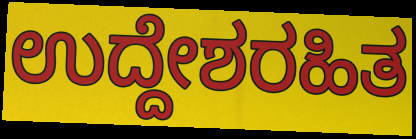
ಉದ್ದೇಶರಹಿತ